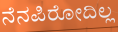
ನೆನಪಿರೋದಿಲ್ಲ